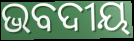
ଭବଦୀୟ